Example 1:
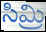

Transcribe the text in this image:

సిమ్రి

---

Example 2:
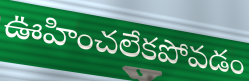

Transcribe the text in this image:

ఊహించలేకపోవడం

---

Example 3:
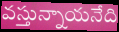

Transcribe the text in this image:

వస్తున్నాయనేది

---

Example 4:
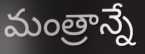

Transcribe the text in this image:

మంత్రాన్నే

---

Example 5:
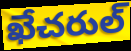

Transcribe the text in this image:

ఖేచరుల్